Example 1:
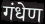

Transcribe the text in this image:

गंधेण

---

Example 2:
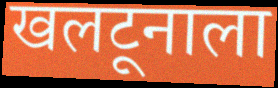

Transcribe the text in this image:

खलटूनाला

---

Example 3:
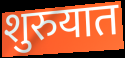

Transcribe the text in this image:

शुरुयात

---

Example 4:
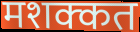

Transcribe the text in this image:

मशक्‍कत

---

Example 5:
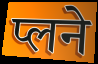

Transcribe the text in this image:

प्लने